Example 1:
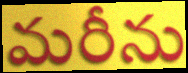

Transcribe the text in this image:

మరీను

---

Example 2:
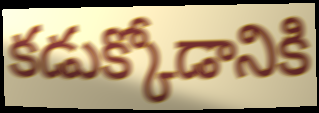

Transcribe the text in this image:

కడుక్కోడానికి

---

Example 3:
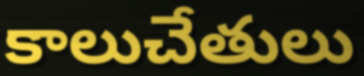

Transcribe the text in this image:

కాలుచేతులు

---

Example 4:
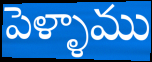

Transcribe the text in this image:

పెళ్ళాము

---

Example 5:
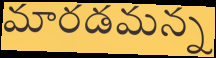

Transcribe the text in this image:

మారడమన్న